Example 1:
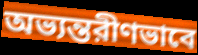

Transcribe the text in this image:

অভ্যন্তরীণভাবে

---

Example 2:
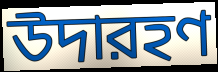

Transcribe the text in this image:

উদারহণ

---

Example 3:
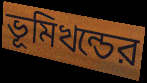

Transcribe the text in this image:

ভূমিখন্ডের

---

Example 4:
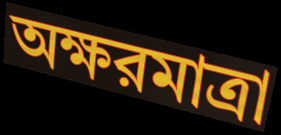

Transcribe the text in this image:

অক্ষরমাত্রা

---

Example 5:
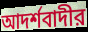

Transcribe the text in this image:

আদর্শবাদীর